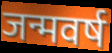
जन्मवर्ष